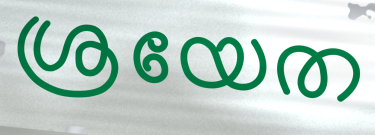
ശ്രയേത